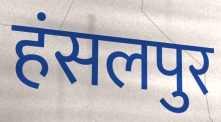
हंसलपुर